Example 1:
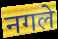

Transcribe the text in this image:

नगले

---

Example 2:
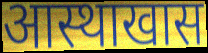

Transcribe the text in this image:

आस्थाखास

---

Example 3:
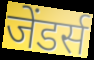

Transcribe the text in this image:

जेंडर्स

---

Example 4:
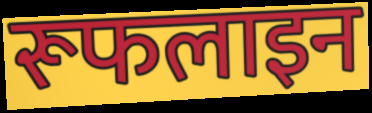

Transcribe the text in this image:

रूफलाइन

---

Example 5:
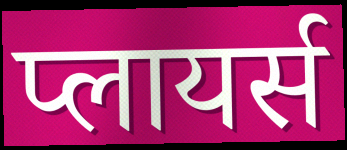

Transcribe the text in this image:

प्लायर्स